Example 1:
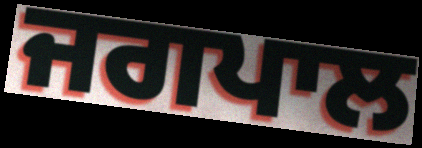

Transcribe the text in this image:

ਜਗਪਾਲ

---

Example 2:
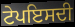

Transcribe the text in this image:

ਟੇਪਇਸਦੀ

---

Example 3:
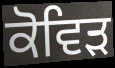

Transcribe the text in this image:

ਕੋਵਿਡ਼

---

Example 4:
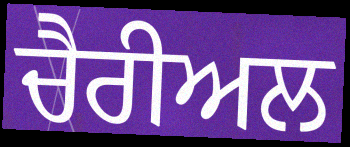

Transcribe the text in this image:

ਚੈਰੀਅਲ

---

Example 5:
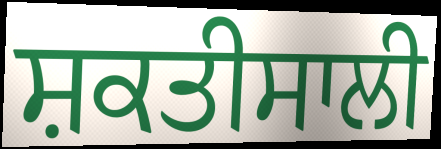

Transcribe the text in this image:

ਸ਼ਕਤੀਸਾਲੀ